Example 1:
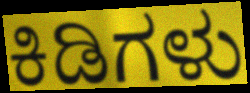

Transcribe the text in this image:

ಕಿಡಿಗಳು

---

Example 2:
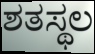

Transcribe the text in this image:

ಶತಸ್ಥಲ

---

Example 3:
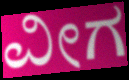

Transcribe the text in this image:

ವೀಗ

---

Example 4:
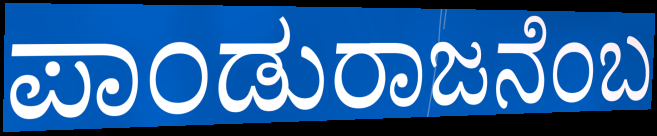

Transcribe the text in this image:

ಪಾಂಡುರಾಜನೆಂಬ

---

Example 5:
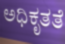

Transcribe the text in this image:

ಅಧಿಕೃತತೆ